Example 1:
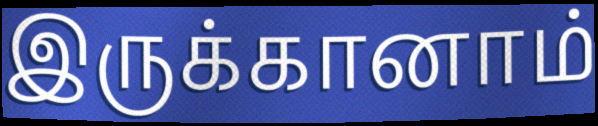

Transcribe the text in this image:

இருக்கானாம்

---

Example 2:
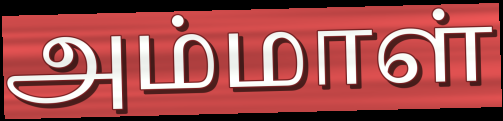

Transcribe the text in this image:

அம்மாள்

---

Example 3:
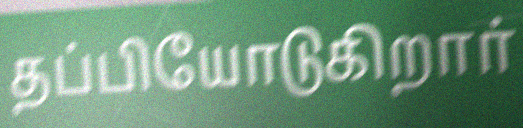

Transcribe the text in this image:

தப்பியோடுகிறார்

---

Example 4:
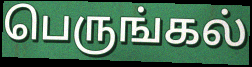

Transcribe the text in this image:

பெருங்கல்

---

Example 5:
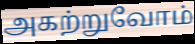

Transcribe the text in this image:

அகற்றுவோம்